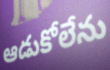
ఆడుకోలేను